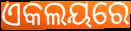
ଏକଲୟରେ